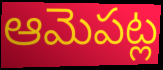
ఆమెపట్ల